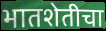
भातशेतीचा